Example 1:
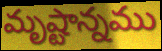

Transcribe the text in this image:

మృష్టాన్నము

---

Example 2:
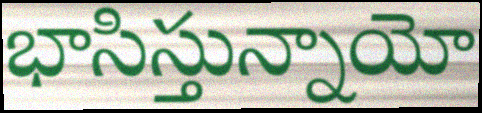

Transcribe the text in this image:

భాసిస్తున్నాయో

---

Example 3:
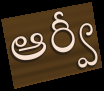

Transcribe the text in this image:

ఆర్వీ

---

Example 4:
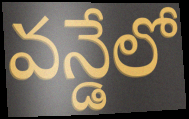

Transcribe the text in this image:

వన్డేలో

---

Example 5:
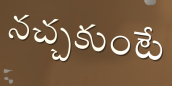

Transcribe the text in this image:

నచ్చకుంటే